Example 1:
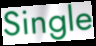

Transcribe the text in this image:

Single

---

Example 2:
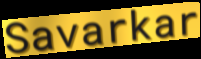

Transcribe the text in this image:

Savarkar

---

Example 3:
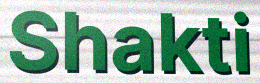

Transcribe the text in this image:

Shakti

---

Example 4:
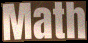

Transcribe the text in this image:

Math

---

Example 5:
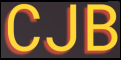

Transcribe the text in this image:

CJB